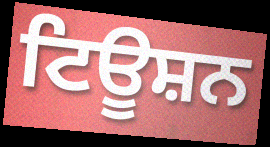
ਟਿਊਸ਼ਨ